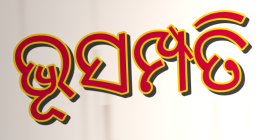
ଭୂସମ୍ପତି